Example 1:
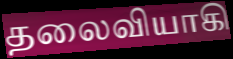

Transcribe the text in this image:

தலைவியாகி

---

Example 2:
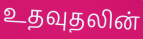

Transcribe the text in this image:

உதவுதலின்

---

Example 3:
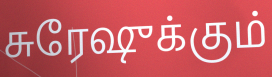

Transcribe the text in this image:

சுரேஷுக்கும்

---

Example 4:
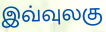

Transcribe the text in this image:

இவ்வுலகு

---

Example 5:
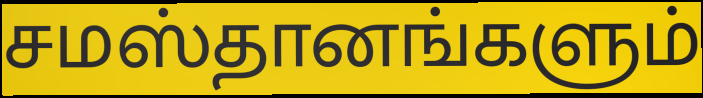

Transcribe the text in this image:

சமஸ்தானங்களும்